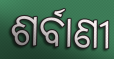
ଶର୍ବାଣୀ